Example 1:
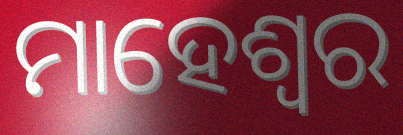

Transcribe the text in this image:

ମାହେଶ୍ଵର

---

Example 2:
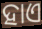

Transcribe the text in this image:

ହାଏ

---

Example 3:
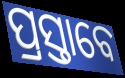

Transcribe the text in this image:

ପ୍ରସ୍ତାବେ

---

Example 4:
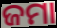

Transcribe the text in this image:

ଜମା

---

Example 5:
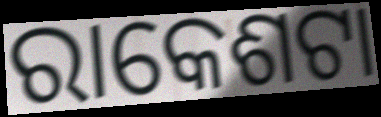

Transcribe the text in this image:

ରାକେଶଟା